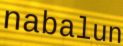
nabalun